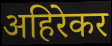
अहिरेकर